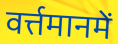
वर्त्तमानमें